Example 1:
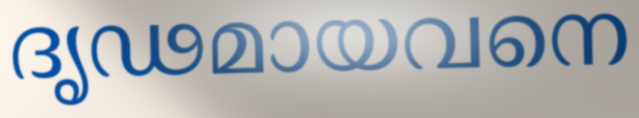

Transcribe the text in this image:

ദൃഢമായവനെ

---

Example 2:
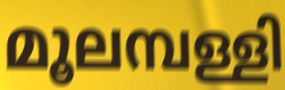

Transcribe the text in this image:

മൂലമ്പള്ളി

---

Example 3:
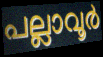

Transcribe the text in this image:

പല്ലാവൂർ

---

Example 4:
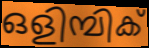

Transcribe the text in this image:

ഒളിമ്പിക്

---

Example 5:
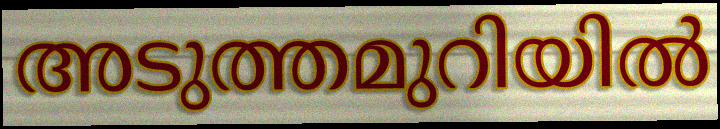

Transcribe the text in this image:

അടുത്തമുറിയിൽ